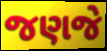
જણજે